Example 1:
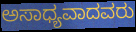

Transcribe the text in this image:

ಅಸಾಧ್ಯವಾದವರು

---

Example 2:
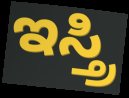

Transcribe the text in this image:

ಇಸ್ತ್ರಿ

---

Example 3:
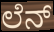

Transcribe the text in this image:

ಲೆನ್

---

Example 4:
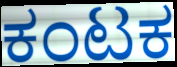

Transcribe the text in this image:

ಕಂಟಕ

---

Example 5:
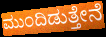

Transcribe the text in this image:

ಮುಂದಿಡುತ್ತೇನೆ